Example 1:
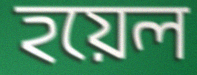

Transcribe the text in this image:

হয়েল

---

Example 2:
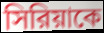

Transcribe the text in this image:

সিরিয়াকে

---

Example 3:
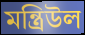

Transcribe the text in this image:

মন্ত্রিউল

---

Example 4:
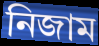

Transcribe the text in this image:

নিজাম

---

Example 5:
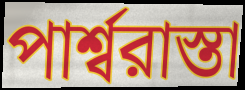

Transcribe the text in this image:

পার্শ্বরাস্তা